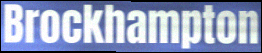
Brockhampton